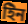
ইিন